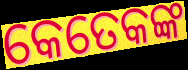
କେତେକଙ୍କ